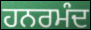
ਹਨਰਮੰਦ